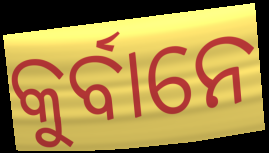
କୁର୍ବାନେ